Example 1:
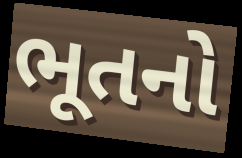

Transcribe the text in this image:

ભૂતનો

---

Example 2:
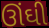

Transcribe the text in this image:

ઊંઘી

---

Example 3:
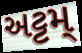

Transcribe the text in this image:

અટ્ટમ્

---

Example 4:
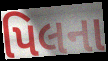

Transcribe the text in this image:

પિલના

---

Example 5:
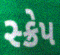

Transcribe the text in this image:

સ્ક્રેપ